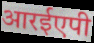
आरईएपी